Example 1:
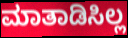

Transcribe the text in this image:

ಮಾತಾಡಿಸಿಲ್ಲ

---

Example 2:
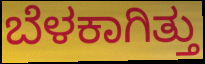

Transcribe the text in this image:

ಬೆಳಕಾಗಿತ್ತು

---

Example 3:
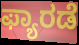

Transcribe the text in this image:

ಫ್ಯಾರಡೆ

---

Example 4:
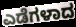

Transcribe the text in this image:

ಎಡೆಗಳಾದ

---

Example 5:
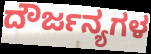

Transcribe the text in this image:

ದೌರ್ಜನ್ಯಗಳ